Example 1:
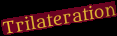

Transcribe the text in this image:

Trilateration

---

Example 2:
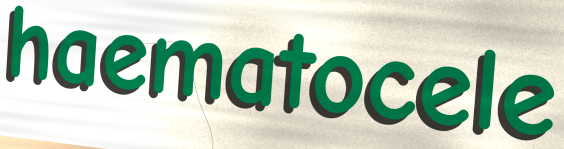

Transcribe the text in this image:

haematocele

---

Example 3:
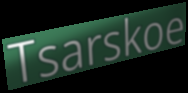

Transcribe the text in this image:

Tsarskoe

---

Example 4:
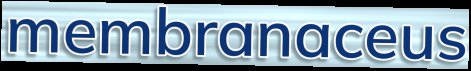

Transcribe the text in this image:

membranaceus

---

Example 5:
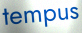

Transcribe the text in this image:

tempus